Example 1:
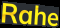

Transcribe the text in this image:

Rahe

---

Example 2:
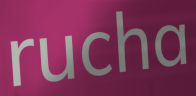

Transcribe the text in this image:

rucha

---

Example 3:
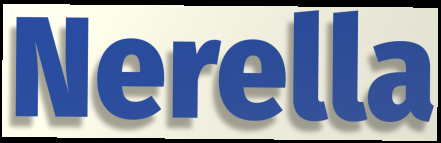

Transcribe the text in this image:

Nerella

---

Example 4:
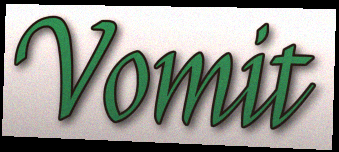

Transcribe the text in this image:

Vomit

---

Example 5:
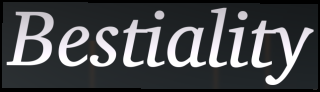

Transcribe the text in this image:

Bestiality